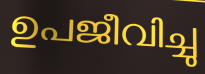
ഉപജീവിച്ചു